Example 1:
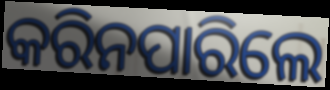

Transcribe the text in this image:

କରିନପାରିଲେ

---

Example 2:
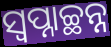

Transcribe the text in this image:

ସ୍ଵପ୍ନାଚ୍ଛନ୍ନ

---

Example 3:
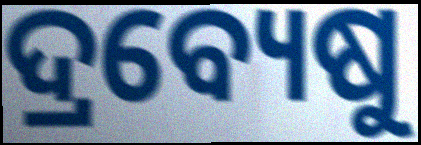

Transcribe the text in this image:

ଦ୍ରବ୍ୟେଷୁ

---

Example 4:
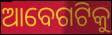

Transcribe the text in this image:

ଆବେଗଟିକୁ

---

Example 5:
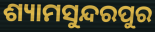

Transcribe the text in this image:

ଶ୍ୟାମସୁନ୍ଦରପୁର